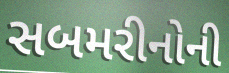
સબમરીનોની